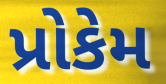
પ્રોકેમ